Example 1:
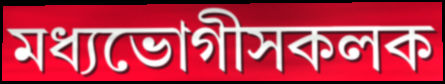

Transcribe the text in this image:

মধ্যভোগীসকলক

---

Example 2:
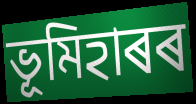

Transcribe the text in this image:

ভূমিহাৰৰ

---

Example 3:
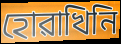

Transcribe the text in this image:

হোৱাখিনি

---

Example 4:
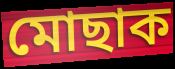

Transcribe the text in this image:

মোছাক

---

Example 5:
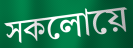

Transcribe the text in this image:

সকলোয়ে